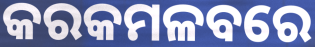
କରକମଳବରେ